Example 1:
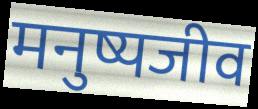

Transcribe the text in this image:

मनुष्यजीव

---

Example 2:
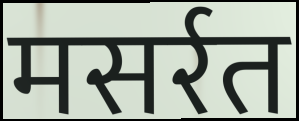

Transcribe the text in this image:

मसर्रत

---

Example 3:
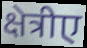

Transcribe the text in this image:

क्षेत्रीए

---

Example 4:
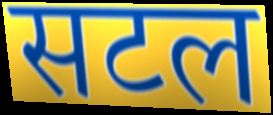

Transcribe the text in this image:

सटल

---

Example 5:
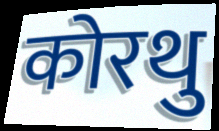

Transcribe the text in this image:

कोरथु